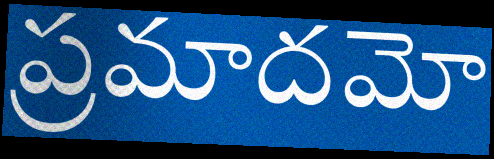
ప్రమాదమో